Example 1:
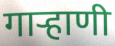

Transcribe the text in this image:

गार्‍हाणी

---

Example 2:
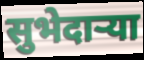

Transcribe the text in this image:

सुभेदाऱ्या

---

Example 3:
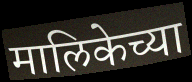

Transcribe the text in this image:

मालिकेच्या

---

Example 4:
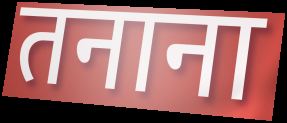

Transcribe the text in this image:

तनाना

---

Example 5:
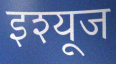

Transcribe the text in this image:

इश्यूज